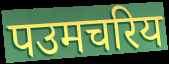
पउमचरिय